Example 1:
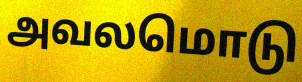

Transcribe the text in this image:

அவலமொடு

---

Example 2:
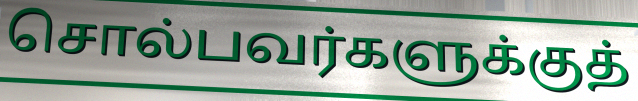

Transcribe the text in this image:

சொல்பவர்களுக்குத்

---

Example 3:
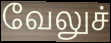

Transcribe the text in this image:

வேலுச்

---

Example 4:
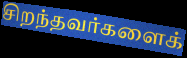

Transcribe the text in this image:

சிறந்தவர்களைக்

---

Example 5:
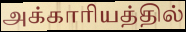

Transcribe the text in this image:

அக்காரியத்தில்